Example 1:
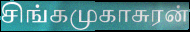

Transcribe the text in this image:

சிங்கமுகாசுரன்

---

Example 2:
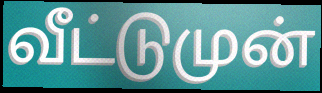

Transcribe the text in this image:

வீட்டுமுன்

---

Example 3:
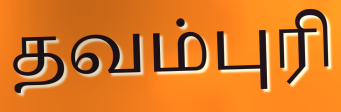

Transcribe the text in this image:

தவம்புரி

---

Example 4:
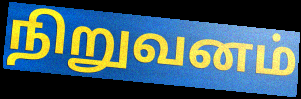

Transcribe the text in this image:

நிறுவனம்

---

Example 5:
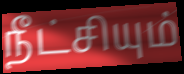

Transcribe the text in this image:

நீட்சியும்